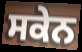
ਸਕੇਨ